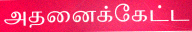
அதனைக்கேட்ட